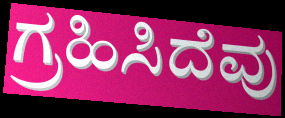
ಗ್ರಹಿಸಿದೆವು